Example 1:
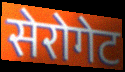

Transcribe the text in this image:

सेरोगेट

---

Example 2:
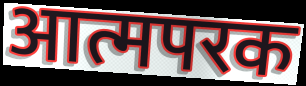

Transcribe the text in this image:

आत्मपरक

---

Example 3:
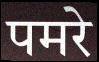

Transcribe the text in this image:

पमरे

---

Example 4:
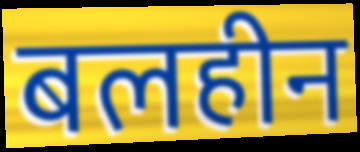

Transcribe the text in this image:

बलहीन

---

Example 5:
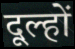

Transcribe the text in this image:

दूल्‍हों